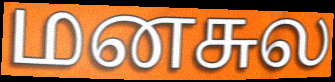
மனசுல